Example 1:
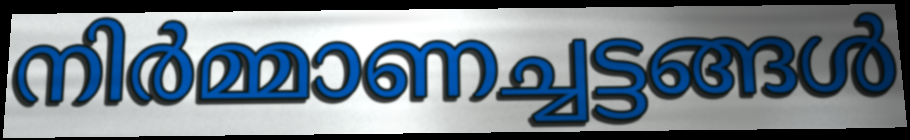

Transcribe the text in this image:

നിർമ്മാണച്ചട്ടങ്ങൾ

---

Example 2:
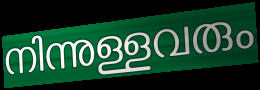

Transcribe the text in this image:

നിന്നുള്ളവരും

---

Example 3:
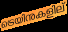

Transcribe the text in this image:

ട്രെയിനുകളില്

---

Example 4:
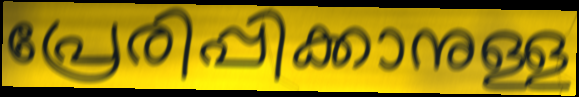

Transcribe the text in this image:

പ്രേരിപ്പിക്കാനുള്ള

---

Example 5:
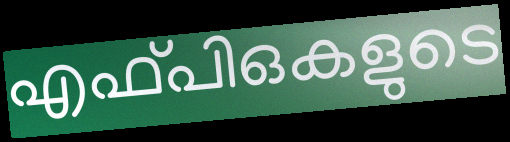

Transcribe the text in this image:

എഫ്പിഒകളുടെ